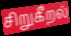
சிறுகீறல்